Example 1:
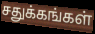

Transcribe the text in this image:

சதுக்கங்கள்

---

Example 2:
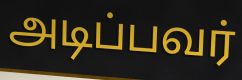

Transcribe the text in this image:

அடிப்பவர்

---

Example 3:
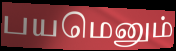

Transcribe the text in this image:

பயமெனும்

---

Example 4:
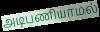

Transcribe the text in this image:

அடிபணியாமல்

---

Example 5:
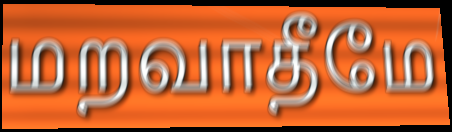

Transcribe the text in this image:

மறவாதீமே